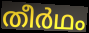
തീർഥം